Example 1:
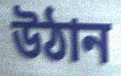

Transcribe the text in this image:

উঠান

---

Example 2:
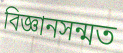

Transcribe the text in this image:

বিজ্ঞানসন্মত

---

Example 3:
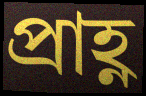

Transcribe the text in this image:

প্ৰাহ্ণ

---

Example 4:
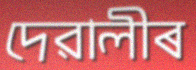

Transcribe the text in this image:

দেৱালীৰ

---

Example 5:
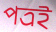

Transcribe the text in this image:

পত্ৰই